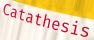
Catathesis